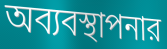
অব্যবস্থাপনার